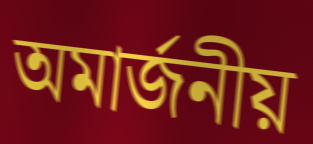
অমার্জনীয়